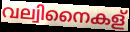
വല്വിനൈകള്